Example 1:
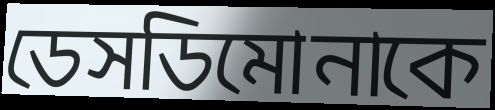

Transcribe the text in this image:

ডেসডিমোনাকে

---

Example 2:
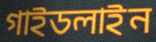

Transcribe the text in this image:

গাইডলাইন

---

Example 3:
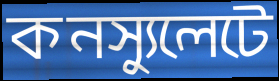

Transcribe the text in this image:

কনস্যুলেটে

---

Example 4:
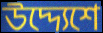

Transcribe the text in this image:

উদ্দ্যেশে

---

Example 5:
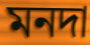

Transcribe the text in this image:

মনদা